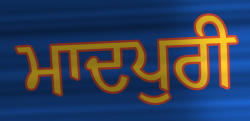
ਮਾਦਪੁਰੀ